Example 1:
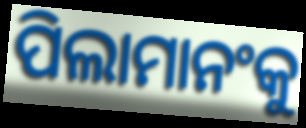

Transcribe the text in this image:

ପିଲାମାନଂକୁ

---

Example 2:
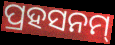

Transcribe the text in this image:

ପ୍ରହସନମ୍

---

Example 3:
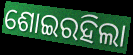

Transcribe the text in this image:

ଶୋଇରହିଲା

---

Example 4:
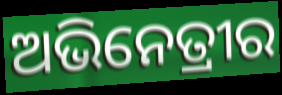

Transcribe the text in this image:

ଅଭିନେତ୍ରୀର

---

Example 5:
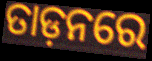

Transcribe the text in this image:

ତାଡ଼ନରେ